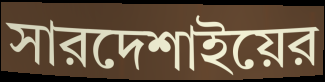
সারদেশাইয়ের